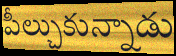
పీల్చుకున్నాడు